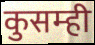
कुसम्ही